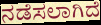
ನಡೆಸಲಾಗಿದೆ